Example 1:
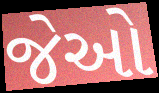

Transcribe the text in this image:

જેઓ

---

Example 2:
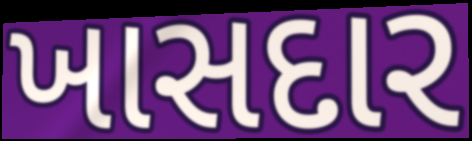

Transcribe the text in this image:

ખાસદાર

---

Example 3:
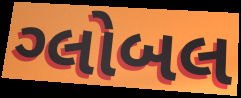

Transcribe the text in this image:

ગ્લોબલ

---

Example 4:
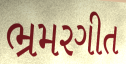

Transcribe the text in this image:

ભ્રમરગીત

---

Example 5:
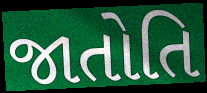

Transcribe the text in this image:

જાતોતિ